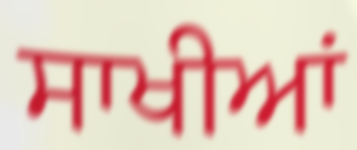
ਸਾਖੀਆਂ